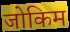
जोकिम